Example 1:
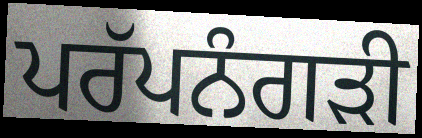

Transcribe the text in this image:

ਪਰੱਪਨੰਗੜੀ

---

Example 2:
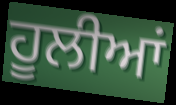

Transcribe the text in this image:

ਹੂਲੀਆਂ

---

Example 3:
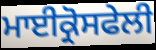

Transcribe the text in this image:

ਮਾਈਕ੍ਰੋਸਫੇਲੀ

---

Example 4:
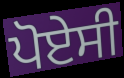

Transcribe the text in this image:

ਪੋਏਸੀ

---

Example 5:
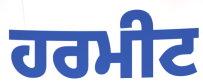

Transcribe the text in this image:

ਹਰਮੀਟ